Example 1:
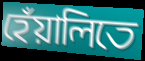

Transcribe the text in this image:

হেঁয়ালিতে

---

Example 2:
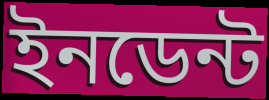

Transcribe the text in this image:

ইনডেন্ট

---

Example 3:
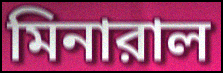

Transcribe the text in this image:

মিনারাল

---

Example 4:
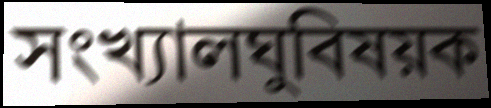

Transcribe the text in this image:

সংখ্যালঘুবিষয়ক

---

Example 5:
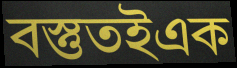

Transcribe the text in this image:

বস্তুতইএক